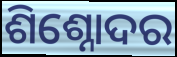
ଶିଶ୍ନୋଦର